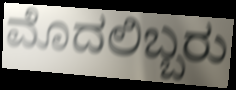
ಮೊದಲಿಬ್ಬರು